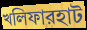
খলিফারহাট